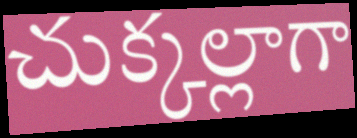
చుక్కల్లాగా